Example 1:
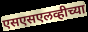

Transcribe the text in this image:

एसएसएलव्हीच्या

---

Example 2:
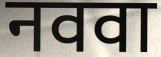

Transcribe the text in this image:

नववा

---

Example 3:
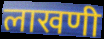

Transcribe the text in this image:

लाखणी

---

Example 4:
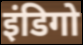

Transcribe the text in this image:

इंडिगो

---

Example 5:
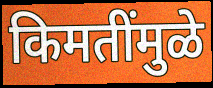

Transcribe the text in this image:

किमतींमुळे